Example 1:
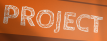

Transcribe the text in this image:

PROJECT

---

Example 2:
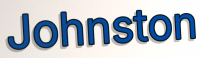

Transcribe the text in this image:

Johnston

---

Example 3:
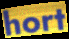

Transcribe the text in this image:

hort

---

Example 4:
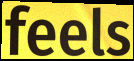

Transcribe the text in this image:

feels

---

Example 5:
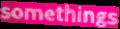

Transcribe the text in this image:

somethings